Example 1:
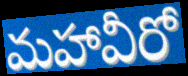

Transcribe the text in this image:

మహావీరో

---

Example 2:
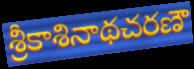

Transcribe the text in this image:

శ్రీకాశినాథచరణౌ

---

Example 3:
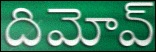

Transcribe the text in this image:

దిమోవ్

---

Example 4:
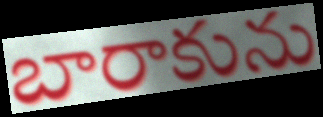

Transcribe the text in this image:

బారాకును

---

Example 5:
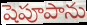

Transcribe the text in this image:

షెపూపాను